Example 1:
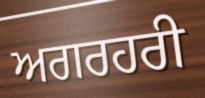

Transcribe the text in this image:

ਅਗਰਹਰੀ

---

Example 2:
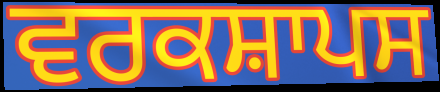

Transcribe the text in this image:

ਵਰਕਸ਼ਾਪਸ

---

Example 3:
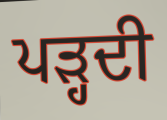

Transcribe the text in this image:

ਪਡ਼੍ਹਦੀ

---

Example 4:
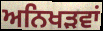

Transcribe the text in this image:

ਅਨਿਖੜਵਾਂ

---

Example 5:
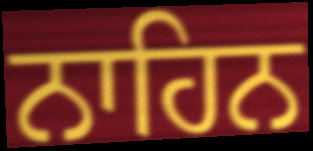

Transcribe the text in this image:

ਨਾਹਿਨ